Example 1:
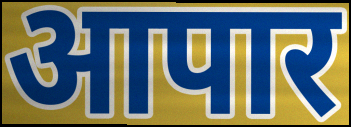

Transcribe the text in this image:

आपार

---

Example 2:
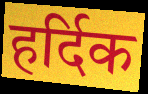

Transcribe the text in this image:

हर्दिक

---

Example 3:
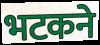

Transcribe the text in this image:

भटकने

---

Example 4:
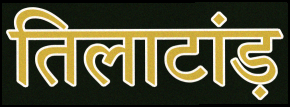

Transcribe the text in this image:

तिलाटांड़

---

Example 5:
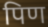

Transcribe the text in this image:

पिण